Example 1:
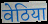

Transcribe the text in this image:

वेठिया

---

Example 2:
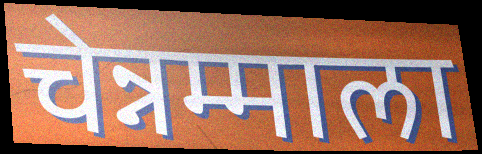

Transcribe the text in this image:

चेन्नम्माला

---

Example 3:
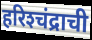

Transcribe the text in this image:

हरिश्‍चंद्राची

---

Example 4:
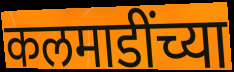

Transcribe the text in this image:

कलमाडींच्या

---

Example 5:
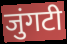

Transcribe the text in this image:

जुंगटी